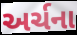
અર્ચના